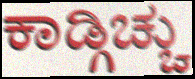
ಕಾಡ್ಗಿಚ್ಚು